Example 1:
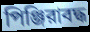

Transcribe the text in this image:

পিঞ্জিরাবদ্ধ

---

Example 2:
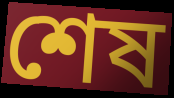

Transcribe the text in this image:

শেষ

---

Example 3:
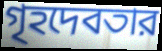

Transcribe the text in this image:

গৃহদেবতার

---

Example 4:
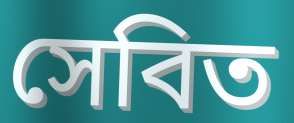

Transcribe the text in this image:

সেবিত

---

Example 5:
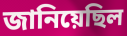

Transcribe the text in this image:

জানিয়েছিল